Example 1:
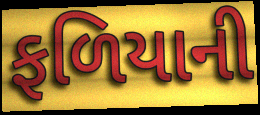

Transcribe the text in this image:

ફળિયાની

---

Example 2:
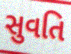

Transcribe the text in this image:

સુવતિ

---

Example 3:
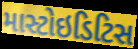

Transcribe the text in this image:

માસ્ટોઇડિટિસ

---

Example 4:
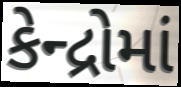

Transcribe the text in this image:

કેન્દ્રોમાં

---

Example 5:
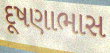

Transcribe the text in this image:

દૂષણાભાસ